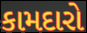
કામદારો